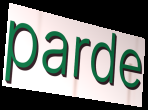
parde